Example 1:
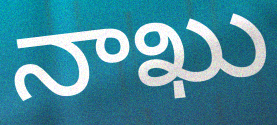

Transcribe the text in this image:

నాఖు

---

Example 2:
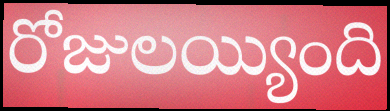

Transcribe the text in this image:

రోజులయ్యింది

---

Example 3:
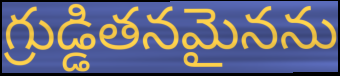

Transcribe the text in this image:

గ్రుడ్డితనమైనను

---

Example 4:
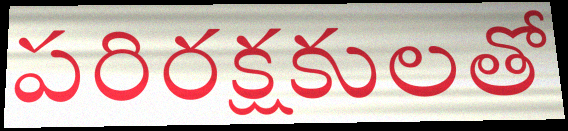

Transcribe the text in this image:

పరిరక్షకులతో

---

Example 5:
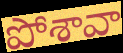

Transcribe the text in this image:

పోశావా